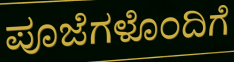
ಪೂಜೆಗಳೊಂದಿಗೆ